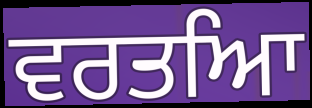
ਵਰਤਆਿ